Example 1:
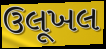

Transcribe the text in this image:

ઉલૂખલ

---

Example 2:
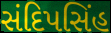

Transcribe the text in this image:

સંદિપસિંહ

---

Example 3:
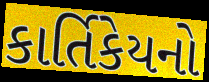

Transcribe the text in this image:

કાર્તિકેયનો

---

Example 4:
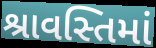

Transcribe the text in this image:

શ્રાવસ્તિમાં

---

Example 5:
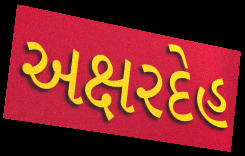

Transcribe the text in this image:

અક્ષરદેહ